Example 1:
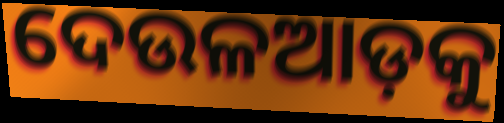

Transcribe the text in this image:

ଦେଉଳଆଡ଼କୁ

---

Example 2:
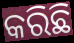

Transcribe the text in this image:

କରିଛି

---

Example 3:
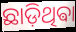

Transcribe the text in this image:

ଛାଡ଼ିଥିଵା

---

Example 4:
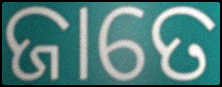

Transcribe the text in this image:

ଜାତେ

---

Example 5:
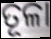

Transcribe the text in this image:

ତୂଳା